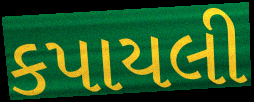
કપાયલી